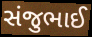
સંજુભાઈ